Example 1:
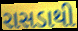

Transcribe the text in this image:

રાસડાથી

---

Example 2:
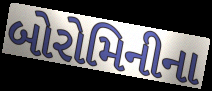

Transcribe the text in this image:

બોરોમિનીના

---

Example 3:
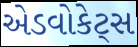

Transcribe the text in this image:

એડવોકેટ્સ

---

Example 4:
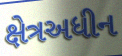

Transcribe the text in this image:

ક્ષેત્રઅધીન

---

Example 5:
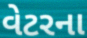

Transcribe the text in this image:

વેટરના